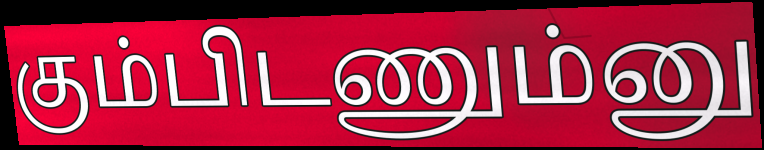
கும்பிடணும்னு